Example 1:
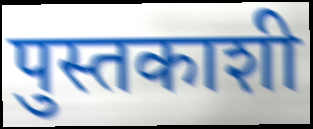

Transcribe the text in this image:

पुस्तकाशी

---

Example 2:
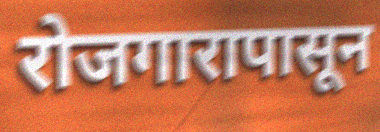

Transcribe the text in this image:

रोजगारापासून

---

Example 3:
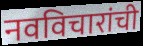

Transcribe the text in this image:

नवविचारांची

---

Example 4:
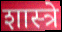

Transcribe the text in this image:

शास्त्रे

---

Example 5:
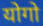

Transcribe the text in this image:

योगो